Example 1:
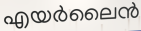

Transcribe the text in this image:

എയർലൈൻ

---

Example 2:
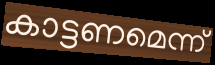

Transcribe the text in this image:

കാട്ടണമെന്ന്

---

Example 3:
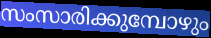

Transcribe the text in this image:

സംസാരിക്കുമ്പോഴും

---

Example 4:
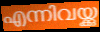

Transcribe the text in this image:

എന്നിവയ്ക്കു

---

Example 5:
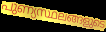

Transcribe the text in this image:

പുണ്യസ്ഥലങ്ങളുടെ